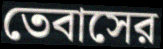
তেবাসের